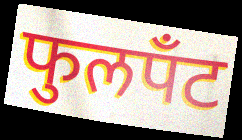
फुलपँट